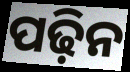
ପଢ଼ିନ